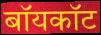
बॉयकॉट